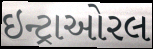
ઇન્ટ્રાઓરલ